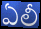
ఏలీ